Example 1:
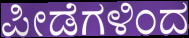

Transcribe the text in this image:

ಪೀಡೆಗಳಿಂದ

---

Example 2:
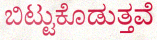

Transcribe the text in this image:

ಬಿಟ್ಟುಕೊಡುತ್ತವೆ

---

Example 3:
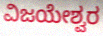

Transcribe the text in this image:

ವಿಜಯೇಶ್ವರ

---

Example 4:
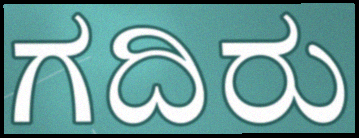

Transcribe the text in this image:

ಗದಿರು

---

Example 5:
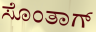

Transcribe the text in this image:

ಸೊಂತಾಗ್